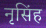
नृसिंह